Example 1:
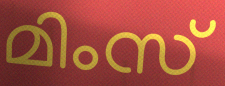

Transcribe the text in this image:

മിംസ്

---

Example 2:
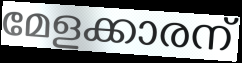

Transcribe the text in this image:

മേളക്കാരന്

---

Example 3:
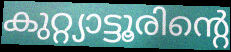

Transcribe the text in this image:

കുറ്റ്യാട്ടൂരിന്റെ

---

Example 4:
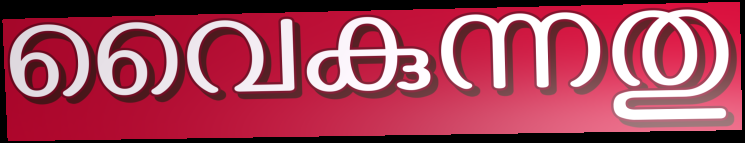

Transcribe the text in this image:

വൈകുന്നതു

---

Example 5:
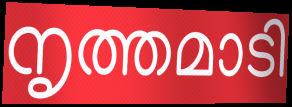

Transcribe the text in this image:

നൃത്തമാടി